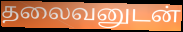
தலைவனுடன்